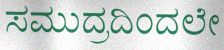
ಸಮುದ್ರದಿಂದಲೇ